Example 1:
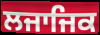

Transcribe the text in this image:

ਲਜਾਜਿਕ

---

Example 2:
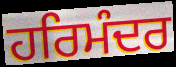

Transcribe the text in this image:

ਹਰਿਮੰਦਰ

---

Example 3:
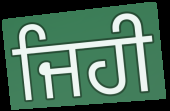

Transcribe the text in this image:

ਜਿਹੀ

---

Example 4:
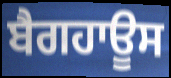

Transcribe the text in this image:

ਬੈਗਹਾਊਸ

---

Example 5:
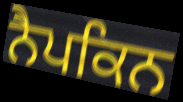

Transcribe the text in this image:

ਨੈਪਕਿਨ